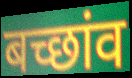
बच्छांव